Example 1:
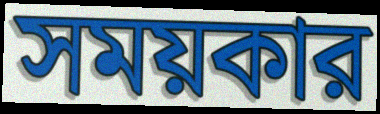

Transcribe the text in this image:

সময়কার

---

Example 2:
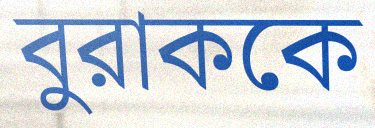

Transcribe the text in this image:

বুরাককে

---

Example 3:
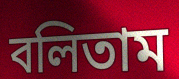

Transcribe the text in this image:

বলিতাম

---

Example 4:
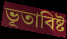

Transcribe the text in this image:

ভূতাবিষ্ট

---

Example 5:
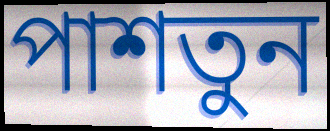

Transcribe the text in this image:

পাশতুন